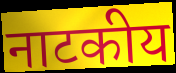
नाटकीय